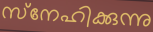
സ്‌നേഹിക്കുന്നു